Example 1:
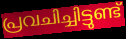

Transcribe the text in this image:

പ്രവചിച്ചിട്ടുണ്ട്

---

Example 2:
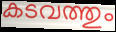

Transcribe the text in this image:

കടവത്തും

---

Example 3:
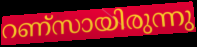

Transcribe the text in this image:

റണ്സായിരുന്നു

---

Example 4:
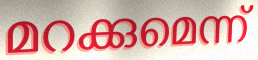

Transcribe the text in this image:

മറക്കുമെന്ന്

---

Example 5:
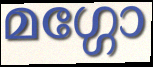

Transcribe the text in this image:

മഗ്ഗോ